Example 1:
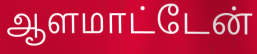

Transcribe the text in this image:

ஆளமாட்டேன்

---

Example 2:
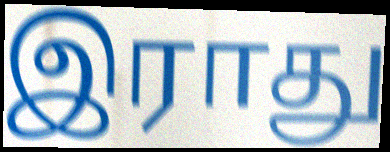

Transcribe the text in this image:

இராது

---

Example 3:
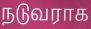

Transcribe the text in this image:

நடுவராக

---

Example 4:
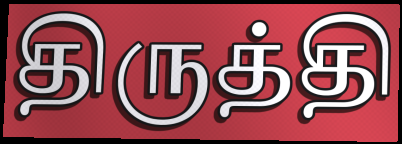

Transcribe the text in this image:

திருத்தி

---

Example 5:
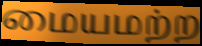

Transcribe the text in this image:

மையமற்ற